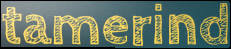
tamerind